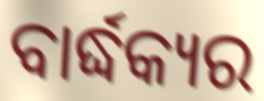
ବାର୍ଦ୍ଧକ୍ୟର